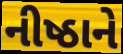
નીષ્ઠાને